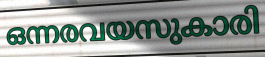
ഒന്നരവയസുകാരി